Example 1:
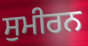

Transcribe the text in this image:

ਸੁਮੀਰਨ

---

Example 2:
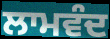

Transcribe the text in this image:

ਲਾਮਵੰਦ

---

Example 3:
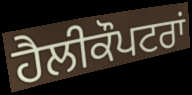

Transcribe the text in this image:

ਹੈਲੀਕੌਪਟਰਾਂ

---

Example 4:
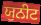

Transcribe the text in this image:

ਯੁਨੀਟ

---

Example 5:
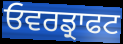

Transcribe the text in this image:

ਓਵਰਡ੍ਰਾਫਟ